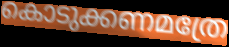
കൊടുക്കണമത്രേ